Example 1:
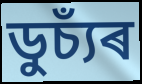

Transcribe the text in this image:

ডুচ্যঁৰ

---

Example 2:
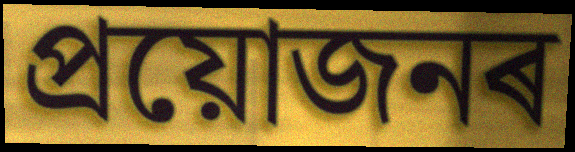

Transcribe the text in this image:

প্ৰয়োজনৰ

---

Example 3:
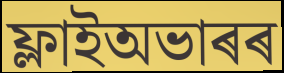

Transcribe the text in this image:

ফ্লাইঅভাৰৰ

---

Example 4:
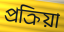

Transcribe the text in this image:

প্ৰক্ৰিয়া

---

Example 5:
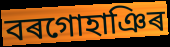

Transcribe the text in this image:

বৰগোহাঞিৰ